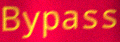
Bypass